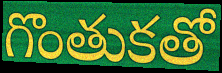
గొంతుకతో